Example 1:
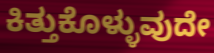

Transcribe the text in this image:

ಕಿತ್ತುಕೊಳ್ಳುವುದೇ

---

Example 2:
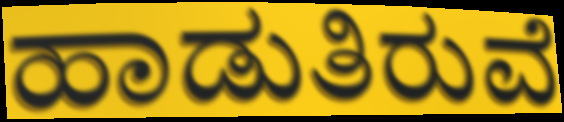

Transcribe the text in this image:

ಹಾಡುತಿರುವೆ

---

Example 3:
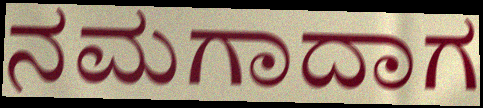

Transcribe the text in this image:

ನಮಗಾದಾಗ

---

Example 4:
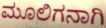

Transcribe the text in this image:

ಮೂಲಿಗನಾಗಿ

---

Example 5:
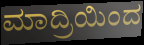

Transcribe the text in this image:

ಮಾದ್ರಿಯಿಂದ